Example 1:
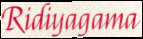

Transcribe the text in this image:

Ridiyagama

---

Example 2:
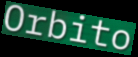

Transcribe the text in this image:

Orbito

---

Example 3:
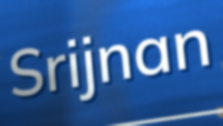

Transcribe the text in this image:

Srijnan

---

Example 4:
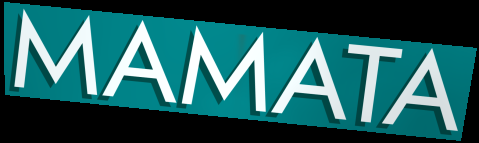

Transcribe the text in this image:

MAMATA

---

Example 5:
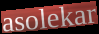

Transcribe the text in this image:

asolekar